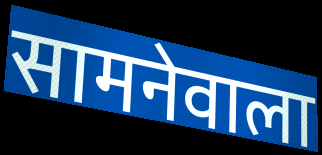
सामनेवाला